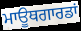
ਮਾਊਥਗਾਰਡਾਂ